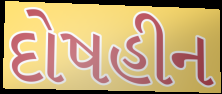
દોષહીન